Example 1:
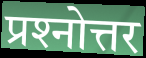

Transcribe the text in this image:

प्रश्‍नोत्तर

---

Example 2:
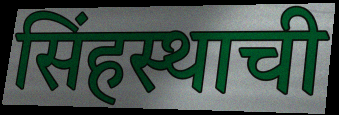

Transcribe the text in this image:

सिंहस्थाची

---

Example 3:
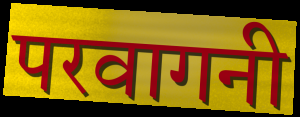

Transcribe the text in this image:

परवागनी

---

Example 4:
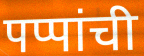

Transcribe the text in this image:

पप्पांची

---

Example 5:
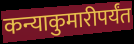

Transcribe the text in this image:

कन्याकुमारीपर्यंत